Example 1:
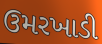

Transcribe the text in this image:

ઉમરખાડી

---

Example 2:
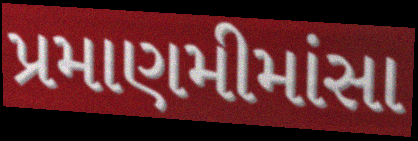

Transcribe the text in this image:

પ્રમાણમીમાંસા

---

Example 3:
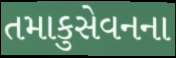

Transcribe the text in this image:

તમાકુસેવનના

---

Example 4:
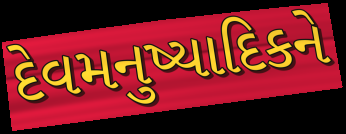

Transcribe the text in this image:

દેવમનુષ્યાદિકને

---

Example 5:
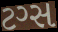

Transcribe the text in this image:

ટગ્સ